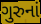
ગુરુનાં